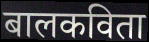
बालकविता